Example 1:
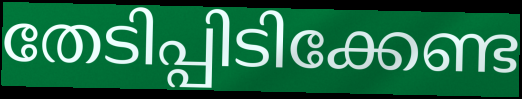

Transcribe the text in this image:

തേടിപ്പിടിക്കേണ്ട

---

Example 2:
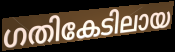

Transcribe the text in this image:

ഗതികേടിലായ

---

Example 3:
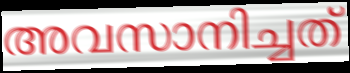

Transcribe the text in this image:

അവസാനിച്ചത്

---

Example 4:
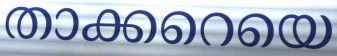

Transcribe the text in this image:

താക്കറെയെ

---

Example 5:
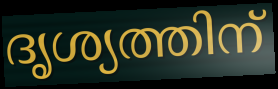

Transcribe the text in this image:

ദൃശ്യത്തിന്